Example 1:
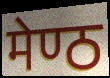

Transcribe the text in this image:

मेण्ठ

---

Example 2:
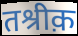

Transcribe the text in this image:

तश्रीक़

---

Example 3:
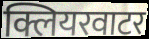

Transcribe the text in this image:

क्लियरवाटर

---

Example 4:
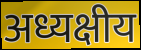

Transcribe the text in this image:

अध्यक्षीय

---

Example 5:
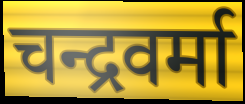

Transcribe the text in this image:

चन्द्रवर्मा